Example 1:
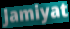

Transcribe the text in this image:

Jamiyat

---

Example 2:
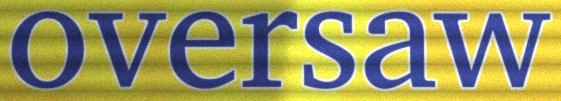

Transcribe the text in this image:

oversaw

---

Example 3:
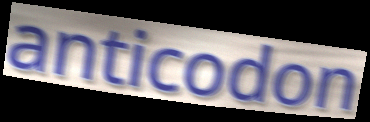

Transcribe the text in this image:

anticodon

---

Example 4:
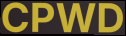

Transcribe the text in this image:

CPWD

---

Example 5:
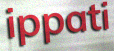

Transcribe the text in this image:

ippati